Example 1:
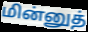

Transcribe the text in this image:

மின்னுத்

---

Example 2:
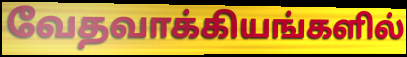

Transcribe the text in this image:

வேதவாக்கியங்களில்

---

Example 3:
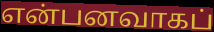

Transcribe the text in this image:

என்பனவாகப்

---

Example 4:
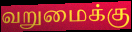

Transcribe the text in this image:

வறுமைக்கு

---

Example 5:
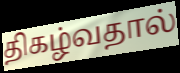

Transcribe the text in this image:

திகழ்வதால்